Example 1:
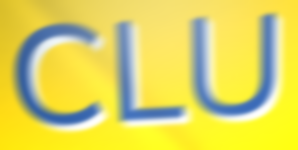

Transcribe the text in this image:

CLU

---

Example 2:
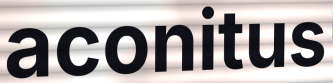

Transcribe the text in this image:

aconitus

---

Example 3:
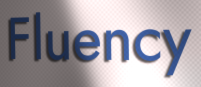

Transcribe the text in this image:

Fluency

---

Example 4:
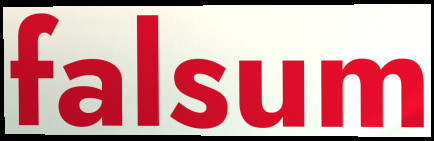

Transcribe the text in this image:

falsum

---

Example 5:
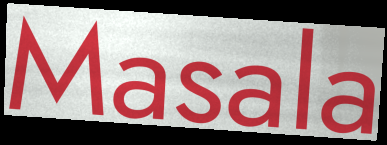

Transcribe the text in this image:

Masala